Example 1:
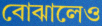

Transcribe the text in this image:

বোঝালেও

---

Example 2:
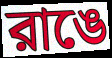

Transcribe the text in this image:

রাঙে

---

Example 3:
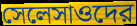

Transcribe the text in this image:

সেলেসাওদের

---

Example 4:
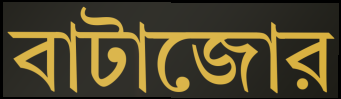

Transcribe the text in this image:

বাটাজোর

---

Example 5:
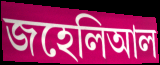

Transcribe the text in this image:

জহেলিআল